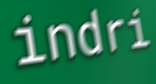
indri